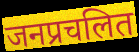
जनप्रचलित